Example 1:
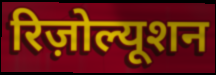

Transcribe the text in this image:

रिज़ोल्यूशन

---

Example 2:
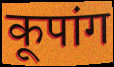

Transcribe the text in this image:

कूपांग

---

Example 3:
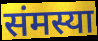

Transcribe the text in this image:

संमस्या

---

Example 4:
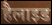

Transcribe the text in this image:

हैलाइड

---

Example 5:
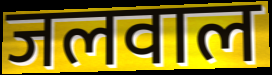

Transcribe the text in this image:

जलवाल